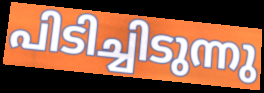
പിടിച്ചിടുന്നു